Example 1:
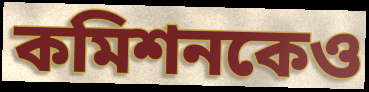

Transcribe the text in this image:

কমিশনকেও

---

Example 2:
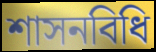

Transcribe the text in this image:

শাসনবিধি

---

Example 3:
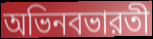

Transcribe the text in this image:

অভিনবভারতী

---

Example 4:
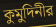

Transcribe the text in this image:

কুমুদিনীর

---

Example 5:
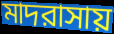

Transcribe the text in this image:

মাদরাসায়